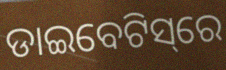
ଡାଇବେଟିସ୍‌ରେ